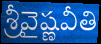
శ్రీవైష్ణవీతి